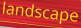
landscape